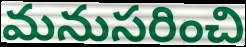
మనుసరించి